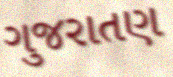
ગુજરાતણ